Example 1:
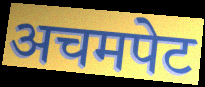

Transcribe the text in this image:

अचमपेट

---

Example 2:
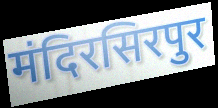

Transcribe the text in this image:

मंदिरसिरपुर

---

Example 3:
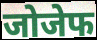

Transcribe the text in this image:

जोजेफ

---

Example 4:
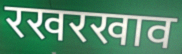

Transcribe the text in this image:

रखरखाव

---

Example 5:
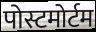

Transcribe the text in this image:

पोस्टमोर्टम